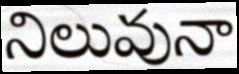
నిలువునా